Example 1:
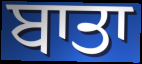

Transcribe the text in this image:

ਬਾਤਾ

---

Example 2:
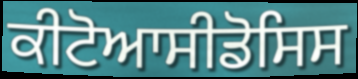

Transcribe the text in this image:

ਕੀਟੋਆਸੀਡੋਸਿਸ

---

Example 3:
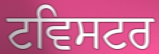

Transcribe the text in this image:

ਟਵਿਸਟਰ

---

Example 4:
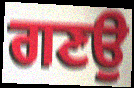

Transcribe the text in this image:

ਗਣਉ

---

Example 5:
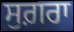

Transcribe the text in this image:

ਸੁਗ਼ਰਾ